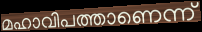
മഹാവിപത്താണെന്ന്